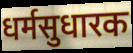
धर्मसुधारक